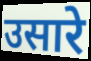
उसारे